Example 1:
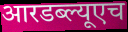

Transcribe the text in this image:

आरडब्ल्यूएच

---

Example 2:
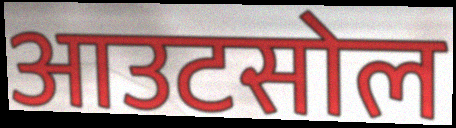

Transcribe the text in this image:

आउटसोल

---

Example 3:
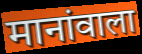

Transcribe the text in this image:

मानांवाला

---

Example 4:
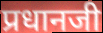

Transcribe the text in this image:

प्रधानजी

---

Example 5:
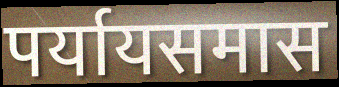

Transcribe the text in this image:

पर्यायसमास